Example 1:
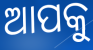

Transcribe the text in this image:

ଆପକୁ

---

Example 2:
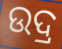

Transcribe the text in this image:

ଉଦ୍ର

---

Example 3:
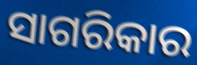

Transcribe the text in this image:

ସାଗରିକାର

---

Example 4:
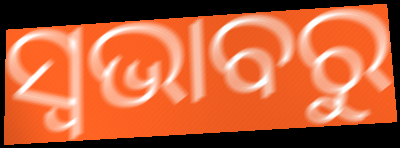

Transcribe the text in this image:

ସ୍ୱଭାବରୁ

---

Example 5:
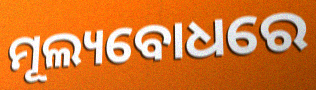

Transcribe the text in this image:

ମୂଲ୍ୟବୋଧରେ